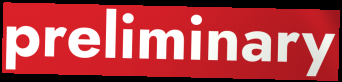
preliminary